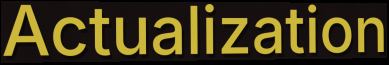
Actualization